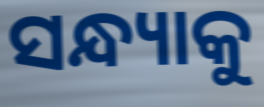
ସନ୍ଧ୍ୟାକୁ